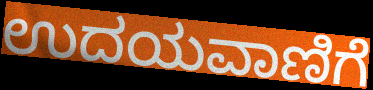
ಉದಯವಾಣಿಗೆ